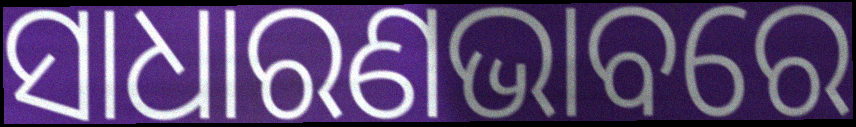
ସାଧାରଣଭାବରେ